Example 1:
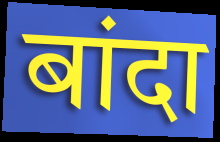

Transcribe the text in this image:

बांदा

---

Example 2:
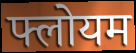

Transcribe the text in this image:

फ्लोयम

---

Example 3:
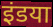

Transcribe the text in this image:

इंडया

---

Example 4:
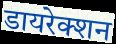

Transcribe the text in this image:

डायरेक्शन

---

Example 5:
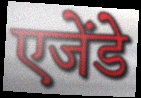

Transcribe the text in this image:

एजेंडे